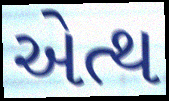
એત્થ